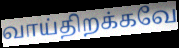
வாய்திறக்கவே